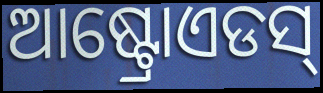
ଆଷ୍ଟ୍ରୋଏଡସ୍